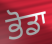
ਭੋਡਾ